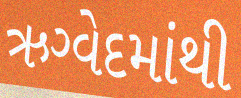
ઋગ્વેદમાંથી